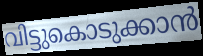
വിട്ടുകൊടുക്കാൻ